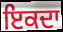
ਇਕਦਾ